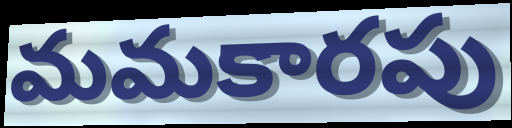
మమకారపు